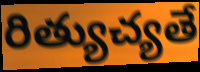
రిత్యుచ్యతే